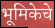
भूमिकेचे